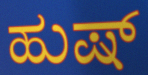
ಹುಷ್